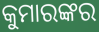
କୁମାରଙ୍କର